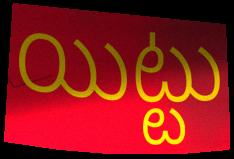
యిట్టు